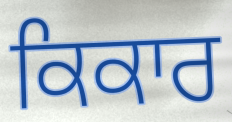
ਕਿਕਾਰ